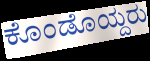
ಕೊಂಡೊಯ್ದರು